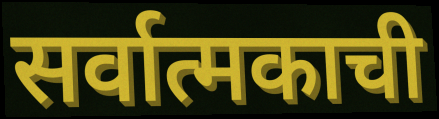
सर्वात्मकाची